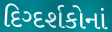
દિગ્દર્શકોનાં